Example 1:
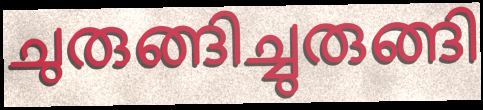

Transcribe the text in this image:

ചുരുങ്ങിച്ചുരുങ്ങി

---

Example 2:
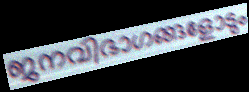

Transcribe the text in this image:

ജനവിഭാഗങ്ങളോടും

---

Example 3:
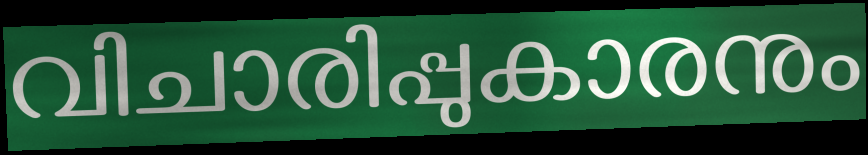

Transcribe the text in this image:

വിചാരിപ്പുകാരനും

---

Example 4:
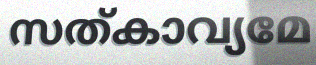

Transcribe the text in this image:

സത്കാവ്യമേ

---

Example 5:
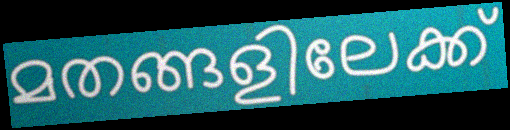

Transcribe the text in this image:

മതങ്ങളിലേക്ക്